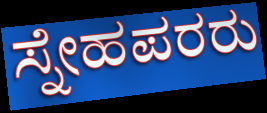
ಸ್ನೇಹಪರರು